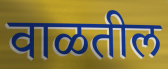
वाळतील